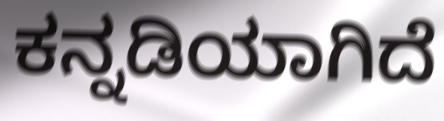
ಕನ್ನಡಿಯಾಗಿದೆ